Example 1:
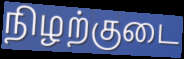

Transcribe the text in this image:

நிழற்குடை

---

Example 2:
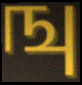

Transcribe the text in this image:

ஙு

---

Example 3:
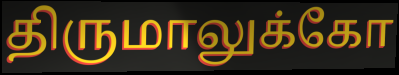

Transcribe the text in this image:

திருமாலுக்கோ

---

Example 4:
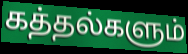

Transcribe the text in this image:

கத்தல்களும்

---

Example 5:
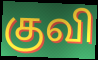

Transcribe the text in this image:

குவி